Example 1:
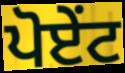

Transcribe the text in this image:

ਪੋਏਂਟ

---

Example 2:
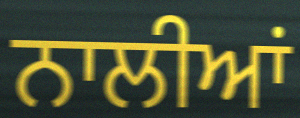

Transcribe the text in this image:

ਨਾਲੀਆਂ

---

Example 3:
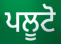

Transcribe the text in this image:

ਪਲੂਟੋ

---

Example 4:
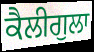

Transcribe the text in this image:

ਕੈਲੀਗੁਲਾ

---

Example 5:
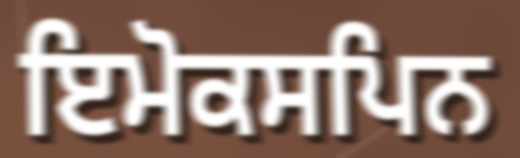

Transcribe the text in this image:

ਇਮੋਕਸਪਿਨ